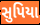
સુપિયા